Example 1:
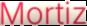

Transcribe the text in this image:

Mortiz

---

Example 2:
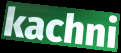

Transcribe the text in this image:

kachni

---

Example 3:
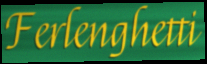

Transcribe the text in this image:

Ferlenghetti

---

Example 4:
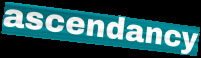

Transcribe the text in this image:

ascendancy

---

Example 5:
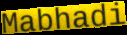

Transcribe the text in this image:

Mabhadi